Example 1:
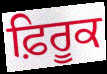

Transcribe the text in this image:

ਫ਼ਿਰੂਕ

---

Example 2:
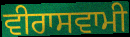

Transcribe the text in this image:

ਵੀਰਾਸਵਾਮੀ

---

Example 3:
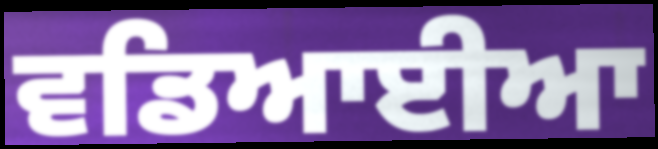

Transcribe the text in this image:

ਵਡਿਆਈਆ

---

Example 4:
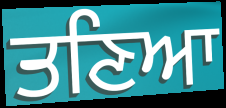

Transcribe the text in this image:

ਤਣਿਆ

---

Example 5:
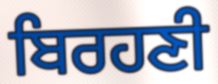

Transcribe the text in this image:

ਬਿਰਹਣੀ